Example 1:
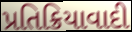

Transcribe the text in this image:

પ્રતિક્રિયાવાદી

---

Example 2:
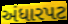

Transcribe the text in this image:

અંધારપટ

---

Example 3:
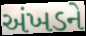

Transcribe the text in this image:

અંખડને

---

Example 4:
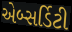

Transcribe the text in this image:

એબ્સર્ડિટી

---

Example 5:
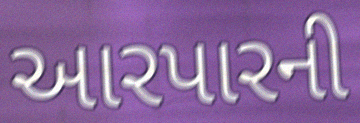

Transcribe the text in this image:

આરપારની